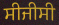
ਸੀਜੀਸੀ